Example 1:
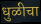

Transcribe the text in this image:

धुळीचा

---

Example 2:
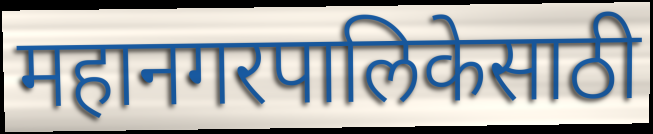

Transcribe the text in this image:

महानगरपालिकेसाठी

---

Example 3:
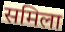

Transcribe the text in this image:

समिला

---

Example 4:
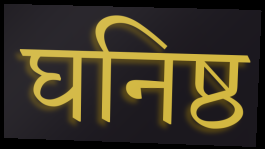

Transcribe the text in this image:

घनिष्ठ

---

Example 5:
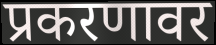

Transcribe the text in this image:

प्रकरणावर